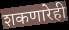
शकणारेही